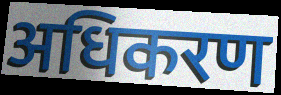
अधिकरण